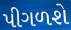
પીગળશે